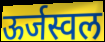
ऊर्जस्वल